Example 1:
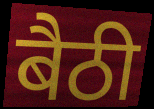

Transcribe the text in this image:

बैठी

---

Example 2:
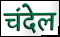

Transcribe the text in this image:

चंदेल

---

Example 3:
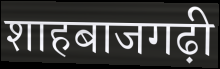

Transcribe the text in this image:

शाहबाजगढ़ी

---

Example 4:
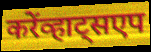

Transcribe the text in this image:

करेंव्हाट्सएप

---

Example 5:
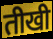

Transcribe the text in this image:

तीखी